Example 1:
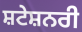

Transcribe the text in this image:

ਸ਼ਟੇਸ਼ਨਰੀ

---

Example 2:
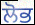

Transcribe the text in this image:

ਲੋਭ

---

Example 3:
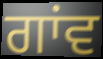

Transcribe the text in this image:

ਗਾਂਵ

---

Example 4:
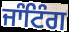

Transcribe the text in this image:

ਜਾੰਟਿੰਗ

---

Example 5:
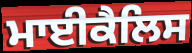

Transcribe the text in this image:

ਮਾਈਕੈਲਿਸ